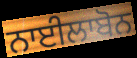
ਨਾਈਲਾਬੋਨ